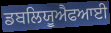
ਡਬਲਿਯੂਐਫਆਈ